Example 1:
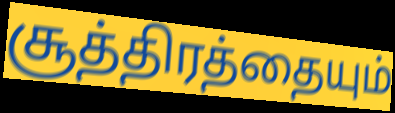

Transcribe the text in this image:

சூத்திரத்தையும்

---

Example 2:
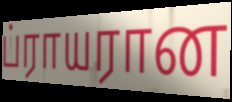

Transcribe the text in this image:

ப்ராயரான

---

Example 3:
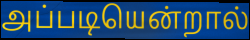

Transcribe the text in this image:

அப்படியென்றால்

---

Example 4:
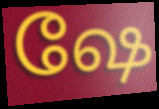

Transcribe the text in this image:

ஷே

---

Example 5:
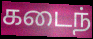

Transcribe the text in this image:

கடைந்